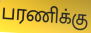
பரணிக்கு